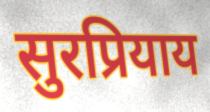
सुरप्रियाय